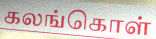
கலங்கொள்